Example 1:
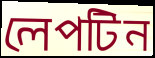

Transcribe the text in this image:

লেপটিন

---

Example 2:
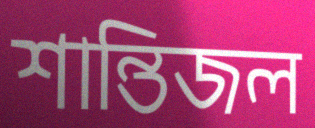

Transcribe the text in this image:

শান্তিজল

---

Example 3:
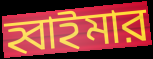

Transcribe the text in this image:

হ্বাইমার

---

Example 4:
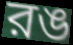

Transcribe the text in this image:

রঙ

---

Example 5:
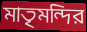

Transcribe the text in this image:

মাতৃমন্দির